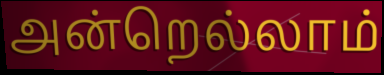
அன்றெல்லாம்